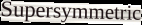
Supersymmetric